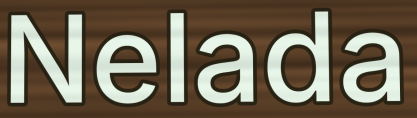
Nelada